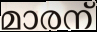
മാരന്